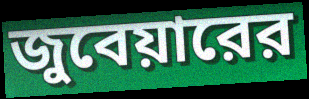
জুবেয়ারের